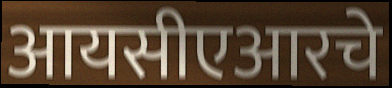
आयसीएआरचे